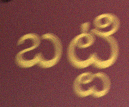
బట్టి